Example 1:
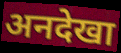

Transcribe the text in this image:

अनदेखा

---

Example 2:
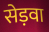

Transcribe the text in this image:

सेड़वा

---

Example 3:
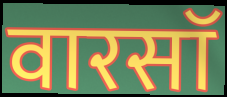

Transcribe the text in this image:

वारसॉ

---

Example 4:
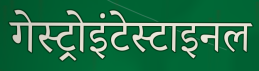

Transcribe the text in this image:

गेस्ट्रोइंटेस्टाइनल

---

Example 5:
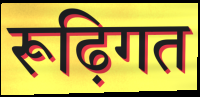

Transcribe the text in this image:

रूढ़िगत